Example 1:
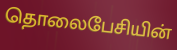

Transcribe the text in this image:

தொலைபேசியின்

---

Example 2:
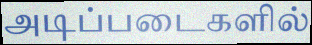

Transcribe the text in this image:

அடிப்படைகளில்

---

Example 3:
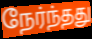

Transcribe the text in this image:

நேர்ந்தது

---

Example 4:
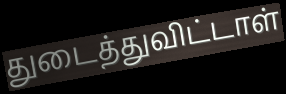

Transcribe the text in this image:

துடைத்துவிட்டாள்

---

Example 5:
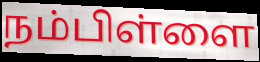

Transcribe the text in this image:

நம்பிள்ளை